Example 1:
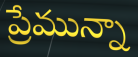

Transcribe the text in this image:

ప్రేమున్నా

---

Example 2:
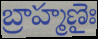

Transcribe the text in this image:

బ్రాహ్మణైః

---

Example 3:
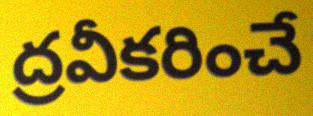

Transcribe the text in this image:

ద్రవీకరించే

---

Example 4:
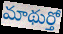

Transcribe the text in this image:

మాథుర్తో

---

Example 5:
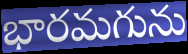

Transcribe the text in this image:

భారమగును